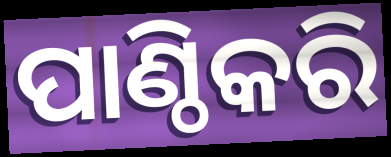
ପାଣ୍ଠିକରି